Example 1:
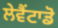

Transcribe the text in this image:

ਲੇਵੈਂਟਾਡੋ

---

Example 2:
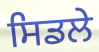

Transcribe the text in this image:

ਸਿਡਲੇ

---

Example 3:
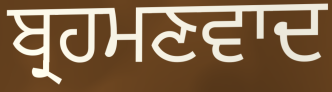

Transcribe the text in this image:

ਬ੍ਰਹਮਣਵਾਦ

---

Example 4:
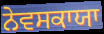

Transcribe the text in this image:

ਨੇਵਸਕਾਯਾ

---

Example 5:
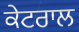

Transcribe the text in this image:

ਕੇਟਰਾਲ